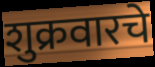
शुक्रवारचे